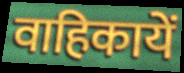
वाहिकायें